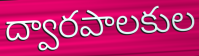
ద్వారపాలకుల